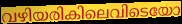
വഴിയരികിലെവിടെയോ